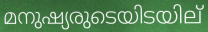
മനുഷ്യരുടെയിടയില്